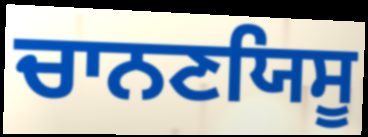
ਚਾਨਣਯਿਸੂ